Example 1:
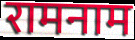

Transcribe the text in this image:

रामनाम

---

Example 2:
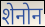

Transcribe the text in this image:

शेनोन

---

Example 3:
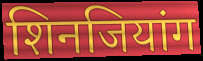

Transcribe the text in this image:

शिनजियांग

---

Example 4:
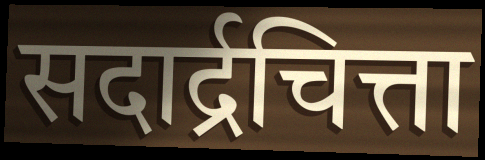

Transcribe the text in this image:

सदार्द्रचित्ता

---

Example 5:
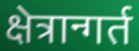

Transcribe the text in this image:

क्षेत्रान्गर्त